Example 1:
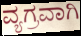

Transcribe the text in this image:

ವ್ಯಗ್ರವಾಗಿ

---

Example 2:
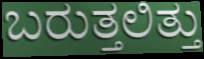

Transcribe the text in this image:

ಬರುತ್ತಲಿತ್ತು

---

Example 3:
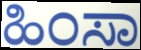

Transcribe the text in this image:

ಹಿಂಸಾ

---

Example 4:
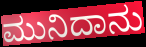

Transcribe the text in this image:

ಮುನಿದಾನು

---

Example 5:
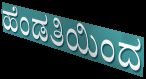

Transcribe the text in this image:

ಹೆಂಡತಿಯಿಂದ